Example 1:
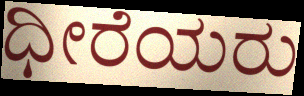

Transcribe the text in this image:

ಧೀರೆಯರು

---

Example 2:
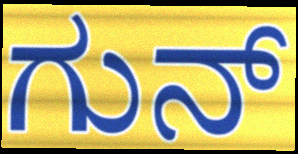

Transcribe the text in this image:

ಗುನ್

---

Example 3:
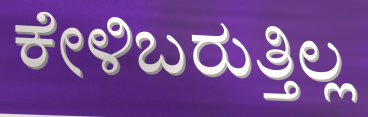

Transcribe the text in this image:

ಕೇಳಿಬರುತ್ತಿಲ್ಲ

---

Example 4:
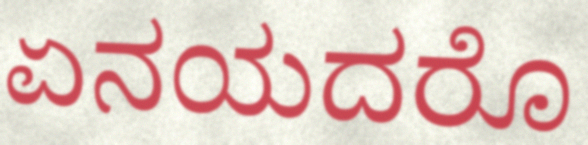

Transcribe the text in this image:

ಏನಯದರೊ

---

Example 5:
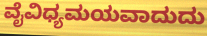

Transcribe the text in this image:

ವೈವಿಧ್ಯಮಯವಾದುದು